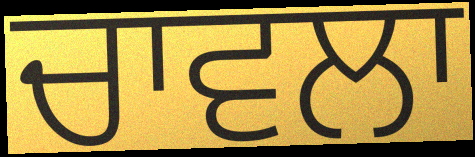
ਚਾਵਲਾ